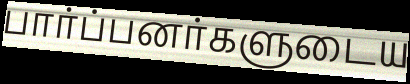
பார்ப்பனர்களுடைய